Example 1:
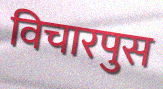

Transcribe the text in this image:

विचारपुस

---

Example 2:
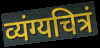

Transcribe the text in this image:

व्यंग्यचित्रं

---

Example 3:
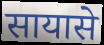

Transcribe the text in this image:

सायासे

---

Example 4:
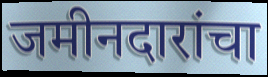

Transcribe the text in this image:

जमीनदारांचा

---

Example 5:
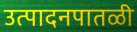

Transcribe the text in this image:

उत्पादनपातळी